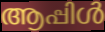
ആപ്പിൾ